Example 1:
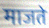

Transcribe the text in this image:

माजते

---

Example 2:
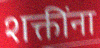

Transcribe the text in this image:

शक्तींना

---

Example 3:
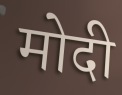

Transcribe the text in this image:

मोदी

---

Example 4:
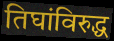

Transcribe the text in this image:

तिघांविरुद्ध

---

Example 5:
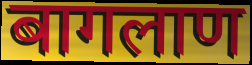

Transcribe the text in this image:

बागलाण